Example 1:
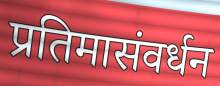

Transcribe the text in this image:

प्रतिमासंवर्धन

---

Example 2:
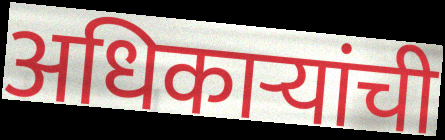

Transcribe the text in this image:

अधिकाऱ्यांची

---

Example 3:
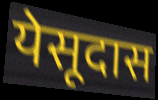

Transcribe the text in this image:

येसूदास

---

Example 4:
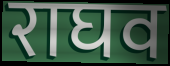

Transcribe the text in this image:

राघव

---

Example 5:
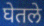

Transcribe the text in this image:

घेतले